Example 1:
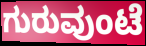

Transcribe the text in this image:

ಗುರುವುಂಟೆ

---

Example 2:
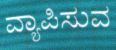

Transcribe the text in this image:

ವ್ಯಾಪಿಸುವ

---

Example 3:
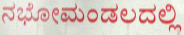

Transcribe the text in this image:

ನಭೋಮಂಡಲದಲ್ಲಿ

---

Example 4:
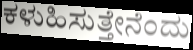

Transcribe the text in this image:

ಕಳುಹಿಸುತ್ತೇನೆಂದು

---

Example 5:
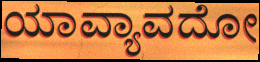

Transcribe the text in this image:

ಯಾವ್ಯಾವದೋ